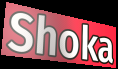
Shoka